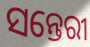
ସନ୍ତେରୀ